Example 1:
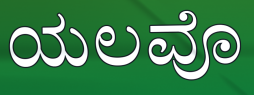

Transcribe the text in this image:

ಯಲವೊ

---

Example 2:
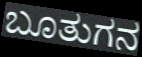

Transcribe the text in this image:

ಬೂತುಗನ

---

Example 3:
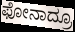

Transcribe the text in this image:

ಫೋನಾದ್ರೂ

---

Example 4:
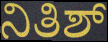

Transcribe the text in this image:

ನಿತಿಶ್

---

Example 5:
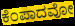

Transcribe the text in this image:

ಕೆಂಪಾದವೋ